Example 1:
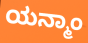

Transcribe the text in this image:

ಯನ್ಮಾಂ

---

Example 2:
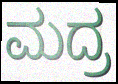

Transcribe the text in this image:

ಮದ್ರ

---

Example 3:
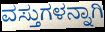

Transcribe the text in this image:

ವಸ್ತುಗಳನ್ನಾಗಿ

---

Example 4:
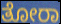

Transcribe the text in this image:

ತೋರಾ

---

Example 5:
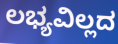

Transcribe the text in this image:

ಲಭ್ಯವಿಲ್ಲದ